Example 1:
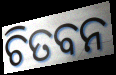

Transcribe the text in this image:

ଚିତବନ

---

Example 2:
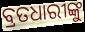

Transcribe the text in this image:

ବ୍ରତଧାରୀଙ୍କୁ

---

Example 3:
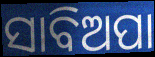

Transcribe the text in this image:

ସାବିଅପା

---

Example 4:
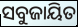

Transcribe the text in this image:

ସବୁଜାୟିତ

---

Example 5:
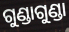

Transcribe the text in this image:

ଗୁଣ୍ଡାଗୁଣ୍ଡା